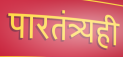
पारतंत्र्यही